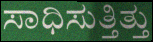
ಸಾಧಿಸುತ್ತಿತ್ತು